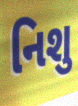
નિશુ